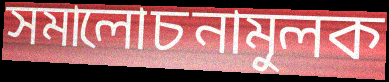
সমালোচনামুলক